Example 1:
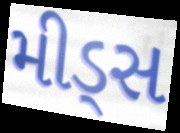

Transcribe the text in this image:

મીડ્સ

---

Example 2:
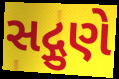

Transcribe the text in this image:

સદ્ગુણે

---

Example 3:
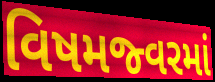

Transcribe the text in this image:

વિષમજ્વરમાં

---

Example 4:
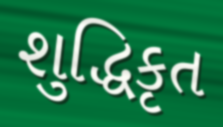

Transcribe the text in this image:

શુદ્ધિકૃત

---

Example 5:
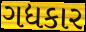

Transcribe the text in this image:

ગદ્યકાર